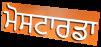
ਮੋਸਟਾਰਡਾ